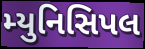
મ્યુનિસિપલ